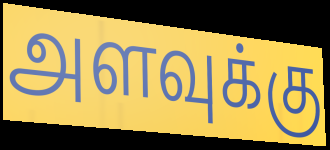
அளவுக்கு